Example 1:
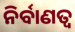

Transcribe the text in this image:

ନିର୍ବାଣତ୍ୱ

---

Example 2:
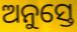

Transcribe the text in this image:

ଅନୁସ୍ତେ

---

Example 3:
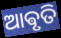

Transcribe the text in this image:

ଆଵୃତି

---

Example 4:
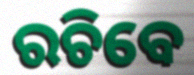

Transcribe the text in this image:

ରଚିବେ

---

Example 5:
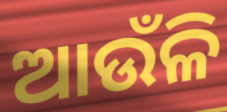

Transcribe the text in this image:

ଆଉଁଳି